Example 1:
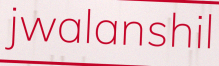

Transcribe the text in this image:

jwalanshil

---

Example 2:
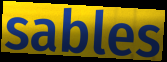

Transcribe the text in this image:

sables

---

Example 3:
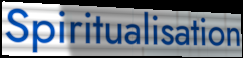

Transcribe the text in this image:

Spiritualisation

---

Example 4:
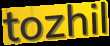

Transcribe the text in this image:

tozhil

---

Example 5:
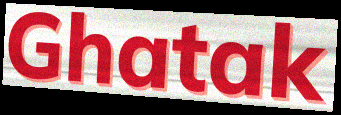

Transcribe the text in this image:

Ghatak